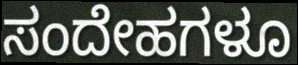
ಸಂದೇಹಗಳೂ